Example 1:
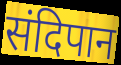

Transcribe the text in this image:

संदिपान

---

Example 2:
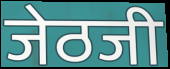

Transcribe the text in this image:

जेठजी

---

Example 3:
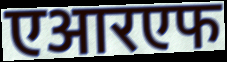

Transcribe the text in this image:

एआरएफ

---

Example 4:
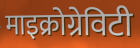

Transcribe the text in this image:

माइक्रोग्रेविटी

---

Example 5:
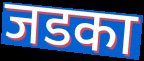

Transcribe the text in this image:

जडका